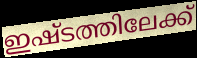
ഇഷ്ടത്തിലേക്ക്